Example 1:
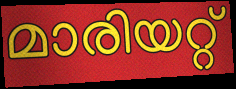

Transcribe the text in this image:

മാരിയറ്റ്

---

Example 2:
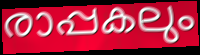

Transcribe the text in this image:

രാപ്പകലും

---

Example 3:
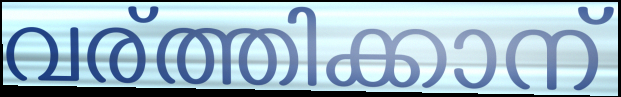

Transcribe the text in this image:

വര്ത്തിക്കാന്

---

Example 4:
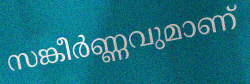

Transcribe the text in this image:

സങ്കീർണ്ണവുമാണ്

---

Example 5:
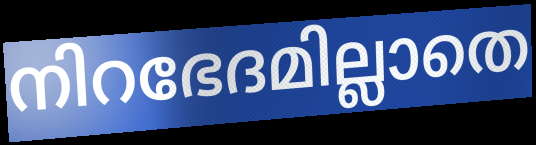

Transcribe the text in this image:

നിറഭേദമില്ലാതെ